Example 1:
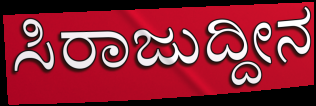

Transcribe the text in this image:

ಸಿರಾಜುದ್ದೀನ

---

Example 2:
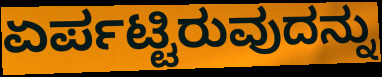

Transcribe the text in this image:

ಏರ್ಪಟ್ಟಿರುವುದನ್ನು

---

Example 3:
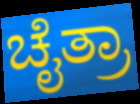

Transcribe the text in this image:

ಚೈತ್ರಾ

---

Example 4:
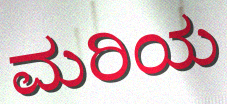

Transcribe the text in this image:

ಮರಿಯ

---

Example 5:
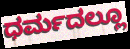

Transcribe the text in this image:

ಧರ್ಮದಲ್ಲೂ